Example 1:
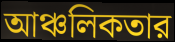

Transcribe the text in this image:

আঞ্চলিকতার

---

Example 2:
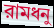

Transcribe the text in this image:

রামধনু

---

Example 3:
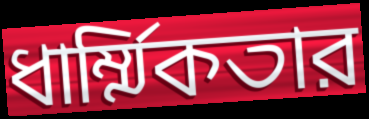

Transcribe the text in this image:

ধার্ম্মিকতার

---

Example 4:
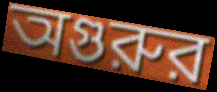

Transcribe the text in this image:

অগুরুর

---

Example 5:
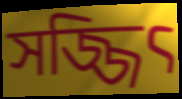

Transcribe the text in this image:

সজ্জিৎ